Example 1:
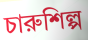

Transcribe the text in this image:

চারুশিল্প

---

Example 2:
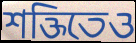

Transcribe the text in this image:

শক্তিতেও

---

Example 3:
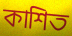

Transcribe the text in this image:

কাশিত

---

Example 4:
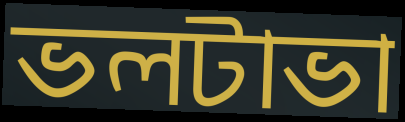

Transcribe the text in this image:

ভলটাভা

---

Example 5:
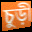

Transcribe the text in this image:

চুড়ী